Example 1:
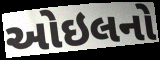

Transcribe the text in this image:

ઓઇલનો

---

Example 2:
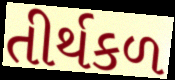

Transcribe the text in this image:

તીર્થકળ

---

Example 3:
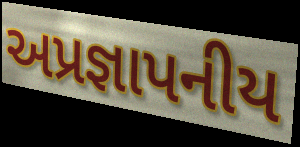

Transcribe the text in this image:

અપ્રજ્ઞાપનીય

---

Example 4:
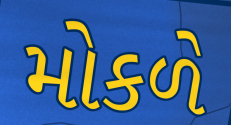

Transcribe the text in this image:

મોકળે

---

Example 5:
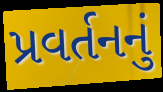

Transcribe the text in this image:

પ્રવર્તનનું